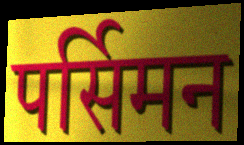
पर्सिमन